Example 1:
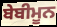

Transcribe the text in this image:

ਬੇਬੀਮੂਨ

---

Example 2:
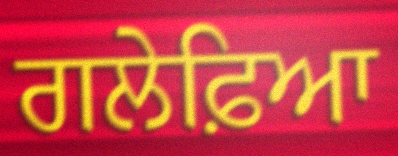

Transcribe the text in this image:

ਗਲੇਫ਼ਿਆ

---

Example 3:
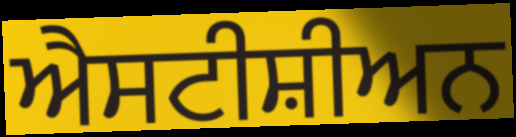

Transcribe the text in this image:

ਐਸਟੀਸ਼ੀਅਨ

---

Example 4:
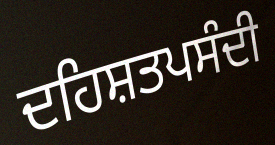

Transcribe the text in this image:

ਦਹਿਸ਼ਤਪਸੰਦੀ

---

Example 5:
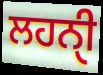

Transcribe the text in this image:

ਲਹਨੑੀ